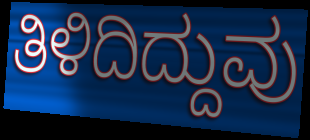
ತಿಳಿದಿದ್ದುವು